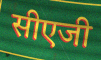
सीएजी